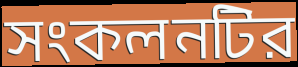
সংকলনটির